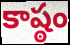
కాష్ఠం